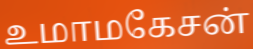
உமாமகேசன்